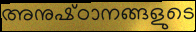
അനുഷ്‌ഠാനങ്ങളുടെ